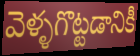
వెళ్ళగొట్టడానికీ